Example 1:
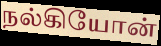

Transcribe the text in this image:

நல்கியோன்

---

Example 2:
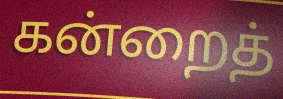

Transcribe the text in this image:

கன்றைத்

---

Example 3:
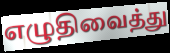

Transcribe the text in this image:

எழுதிவைத்து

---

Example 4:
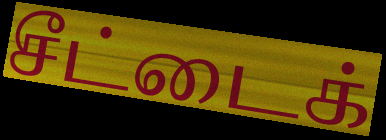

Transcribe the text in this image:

சீட்டைக்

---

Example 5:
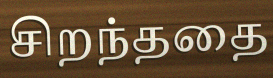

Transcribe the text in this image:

சிறந்ததை